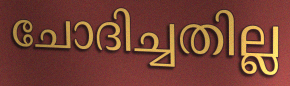
ചോദിച്ചതില്ല